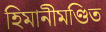
হিমানীমণ্ডিত